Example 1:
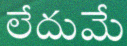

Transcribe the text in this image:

లేదుమే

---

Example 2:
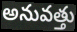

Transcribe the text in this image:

అనువత్తు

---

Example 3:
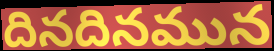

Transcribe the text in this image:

దినదినమున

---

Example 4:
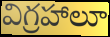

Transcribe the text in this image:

విగ్రహాలూ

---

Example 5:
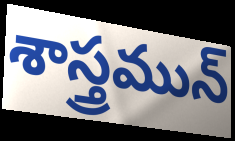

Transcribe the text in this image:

శాస్త్రమున్